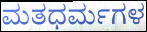
ಮತಧರ್ಮಗಳ